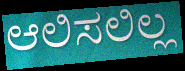
ಆಲಿಸಲಿಲ್ಲ